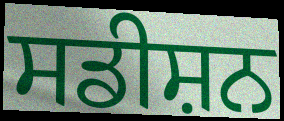
ਸਡੀਸ਼ਨ